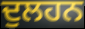
ਦੁਲਹਨ